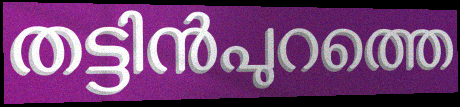
തട്ടിൻപുറത്തെ